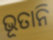
ଭୂତାନି